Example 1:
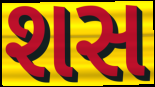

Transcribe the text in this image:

શસ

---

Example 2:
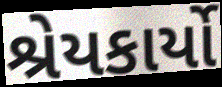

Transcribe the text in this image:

શ્રેયકાર્યો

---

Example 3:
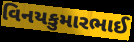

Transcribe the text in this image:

વિનયકુમારભાઈ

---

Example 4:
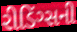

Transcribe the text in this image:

રીડિંગ્સની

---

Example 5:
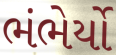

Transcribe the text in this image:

ભંભેર્યો